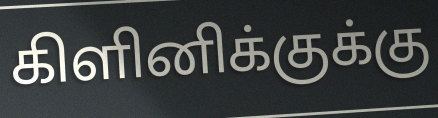
கிளினிக்குக்கு